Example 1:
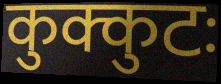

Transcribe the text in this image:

कुक्कुटः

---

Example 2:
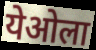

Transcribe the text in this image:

येओला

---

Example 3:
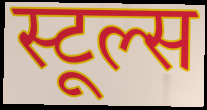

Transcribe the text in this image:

स्टूल्स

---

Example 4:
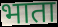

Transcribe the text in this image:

भाता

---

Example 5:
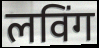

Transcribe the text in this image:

लविंग